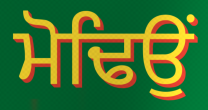
ਮੋਢਿਉਂ